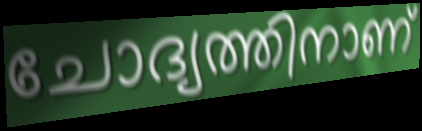
ചോദ്യത്തിനാണ്